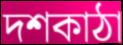
দশকাঠা